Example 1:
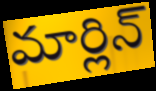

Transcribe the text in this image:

మార్లిన్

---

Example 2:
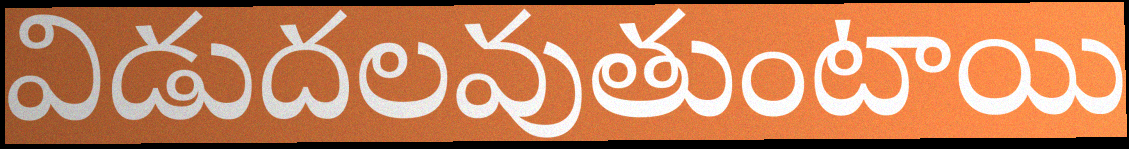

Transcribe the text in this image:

విడుదలవుతుంటాయి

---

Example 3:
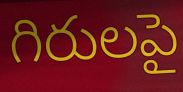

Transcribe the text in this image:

గిరులపై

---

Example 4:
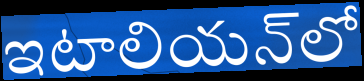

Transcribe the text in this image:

ఇటాలియన్‌లో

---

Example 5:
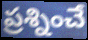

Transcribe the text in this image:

ప్రశ్నించే